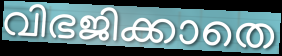
വിഭജിക്കാതെ